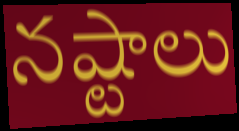
నష్టాలు